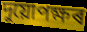
দুয়োপক্ষৰ